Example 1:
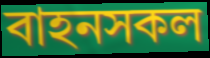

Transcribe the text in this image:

বাহনসকল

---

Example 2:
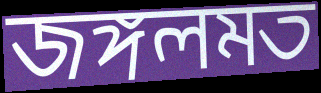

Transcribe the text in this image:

জঙ্গলমত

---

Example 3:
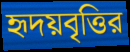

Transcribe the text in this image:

হৃদয়বৃত্তির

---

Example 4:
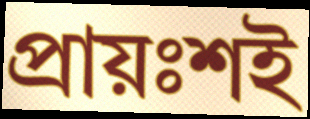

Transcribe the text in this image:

প্রায়ঃশই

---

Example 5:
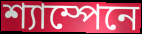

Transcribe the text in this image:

শ্যাম্পেনে